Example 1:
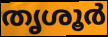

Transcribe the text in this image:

തൃശൂർ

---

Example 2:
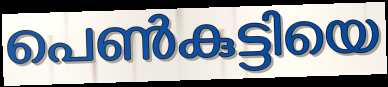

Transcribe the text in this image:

പെൺകുട്ടിയെ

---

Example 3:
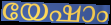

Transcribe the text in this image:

യേഷാം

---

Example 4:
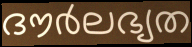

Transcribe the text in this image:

ദൗർലഭ്യത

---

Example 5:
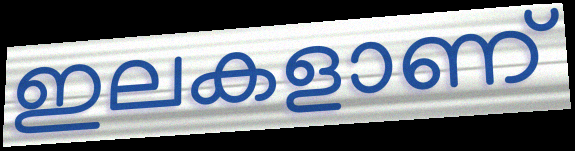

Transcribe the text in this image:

ഇലകളാണ്